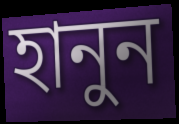
হানুন